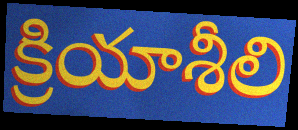
క్రియాశీలి